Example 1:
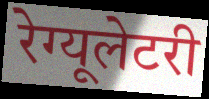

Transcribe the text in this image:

रेग्यूलेटरी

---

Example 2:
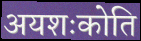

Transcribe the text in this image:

अयशःकोति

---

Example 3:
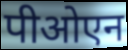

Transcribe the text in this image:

पीओएन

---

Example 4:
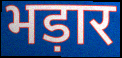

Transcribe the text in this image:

भड़ार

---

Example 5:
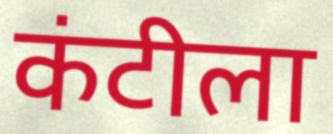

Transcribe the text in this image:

कंटीला